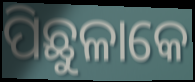
ପିଛୁଳାକେ